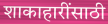
शाकाहारींसाठी